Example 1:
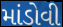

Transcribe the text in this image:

માંડોવી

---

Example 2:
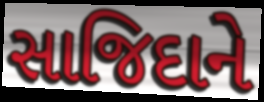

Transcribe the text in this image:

સાજિદાને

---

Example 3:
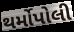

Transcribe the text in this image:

થર્મોપોલી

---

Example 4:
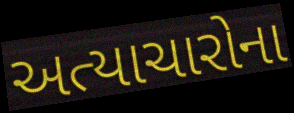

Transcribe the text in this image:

અત્યાચારોના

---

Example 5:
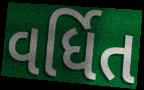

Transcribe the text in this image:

વર્ધિત